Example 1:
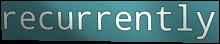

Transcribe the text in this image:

recurrently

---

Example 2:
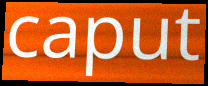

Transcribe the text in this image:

caput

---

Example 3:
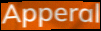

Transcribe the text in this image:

Apperal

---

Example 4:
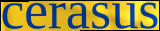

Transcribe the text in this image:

cerasus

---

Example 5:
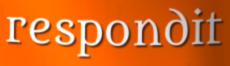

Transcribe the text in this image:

respondit